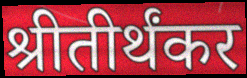
श्रीतीर्थंकर